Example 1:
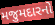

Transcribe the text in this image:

મજુમદારનો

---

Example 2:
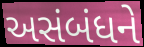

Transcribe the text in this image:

અસંબંધને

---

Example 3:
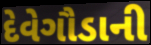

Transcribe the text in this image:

દેવેગૌડાની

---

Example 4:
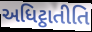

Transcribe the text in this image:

અધિટ્ઠાતીતિ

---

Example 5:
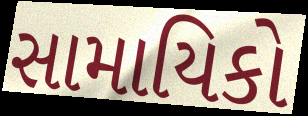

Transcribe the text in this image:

સામાયિકો